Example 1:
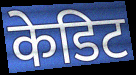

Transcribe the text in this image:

केडिट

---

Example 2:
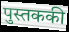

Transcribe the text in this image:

पुस्तककी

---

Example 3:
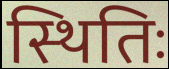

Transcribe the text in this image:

स्थितिः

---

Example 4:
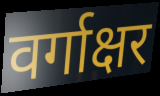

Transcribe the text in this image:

वर्गाक्षर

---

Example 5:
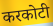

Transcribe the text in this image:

करकोटी